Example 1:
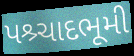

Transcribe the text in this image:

પશ્ર્ચાદભૂમી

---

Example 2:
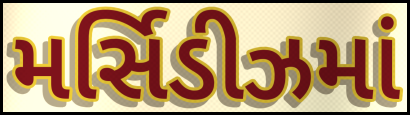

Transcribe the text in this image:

મર્સિડીઝમાં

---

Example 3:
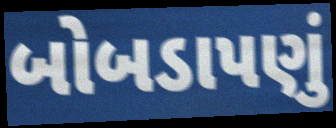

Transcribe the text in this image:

બોબડાપણું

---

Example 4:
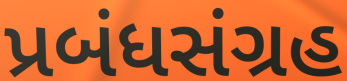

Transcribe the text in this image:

પ્રબંધસંગ્રહ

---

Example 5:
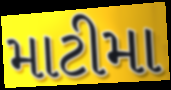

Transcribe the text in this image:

માટીમા